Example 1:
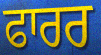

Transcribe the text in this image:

ਫਾਰਰ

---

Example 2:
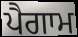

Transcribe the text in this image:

ਪੈਗਾਮ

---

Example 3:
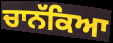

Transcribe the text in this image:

ਚਾਨੱਕਿਆ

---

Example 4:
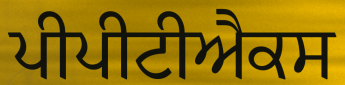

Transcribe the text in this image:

ਪੀਪੀਟੀਐਕਸ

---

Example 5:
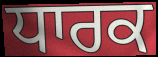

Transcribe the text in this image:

ਧਾਰਕ